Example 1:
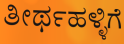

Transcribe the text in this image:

ತೀರ್ಥಹಳ್ಳಿಗೆ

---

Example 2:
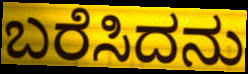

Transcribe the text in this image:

ಬರೆಸಿದನು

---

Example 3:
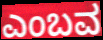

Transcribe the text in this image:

ಎಂಬವ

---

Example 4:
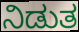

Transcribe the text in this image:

ನಿಡುತ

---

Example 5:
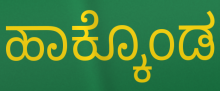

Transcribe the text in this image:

ಹಾಕ್ಕೊಂಡ